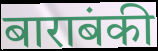
बाराबंकी